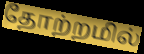
தோற்றமில்